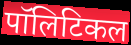
पॉलिटिकल